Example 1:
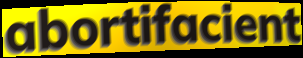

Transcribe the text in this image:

abortifacient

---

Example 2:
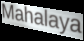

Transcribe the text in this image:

Mahalaya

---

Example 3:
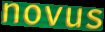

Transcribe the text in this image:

novus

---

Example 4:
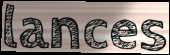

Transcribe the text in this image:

lances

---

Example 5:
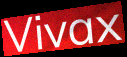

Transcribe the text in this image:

Vivax